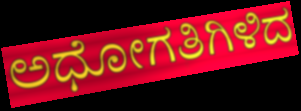
ಅಧೋಗತಿಗಿಳಿದ